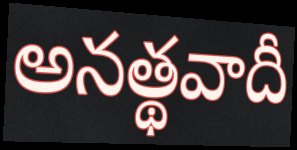
అనత్థవాదీ